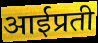
आईप्रती